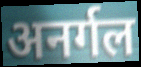
अनर्गल